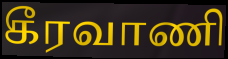
கீரவாணி